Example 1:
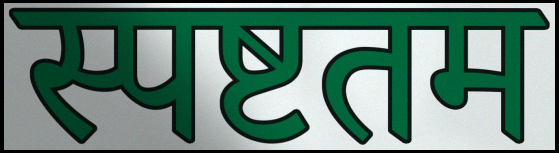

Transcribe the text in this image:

स्पष्टतम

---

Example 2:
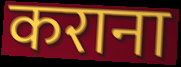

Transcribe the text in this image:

कराना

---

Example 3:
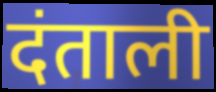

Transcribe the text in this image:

दंताली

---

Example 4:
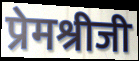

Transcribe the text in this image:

प्रेमश्रीजी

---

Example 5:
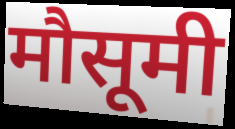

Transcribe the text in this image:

मौसूमी